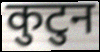
कुटुन